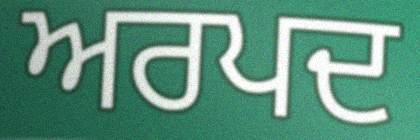
ਅਰਪਦ